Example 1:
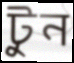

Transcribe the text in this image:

টুন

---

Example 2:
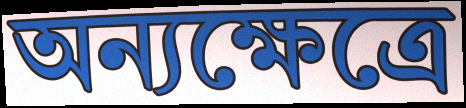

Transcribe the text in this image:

অন্যক্ষেত্রে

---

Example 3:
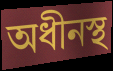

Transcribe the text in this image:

অধীনস্থ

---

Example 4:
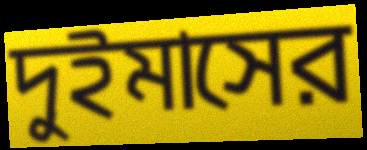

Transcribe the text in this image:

দুইমাসের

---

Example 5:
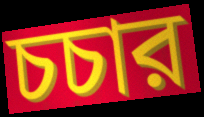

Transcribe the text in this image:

চচার